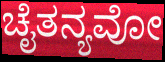
ಚೈತನ್ಯವೋ